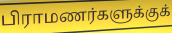
பிராமணர்களுக்குக்